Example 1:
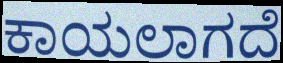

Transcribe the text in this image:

ಕಾಯಲಾಗದೆ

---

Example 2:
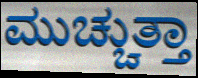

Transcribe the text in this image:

ಮುಚ್ಚುತ್ತಾ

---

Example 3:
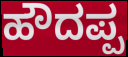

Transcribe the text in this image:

ಹೌದಪ್ಪ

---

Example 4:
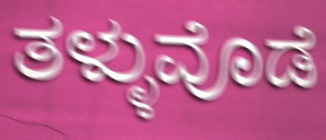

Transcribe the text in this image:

ತಳ್ಳುವೊಡೆ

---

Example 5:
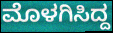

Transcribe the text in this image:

ಮೊಳಗಿಸಿದ್ದ